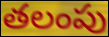
తలంపు